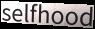
selfhood